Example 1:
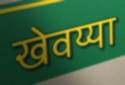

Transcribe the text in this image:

खेवय्या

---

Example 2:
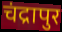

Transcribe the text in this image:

चंद्रापुर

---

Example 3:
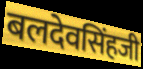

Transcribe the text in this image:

बलदेवसिंहजी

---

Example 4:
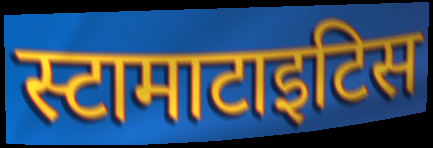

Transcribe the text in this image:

स्टामाटाइटिस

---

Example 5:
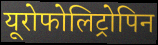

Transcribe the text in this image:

यूरोफोलिट्रोपिन